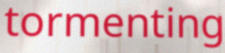
tormenting